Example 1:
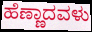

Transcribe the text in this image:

ಹೆಣ್ಣಾದವಳು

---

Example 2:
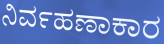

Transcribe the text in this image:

ನಿರ್ವಹಣಾಕಾರ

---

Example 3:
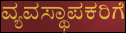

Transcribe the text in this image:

ವ್ಯವಸ್ಥಾಪಕರಿಗೆ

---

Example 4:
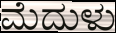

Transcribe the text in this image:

ಮೆದುಳು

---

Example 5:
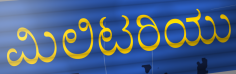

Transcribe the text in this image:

ಮಿಲಿಟರಿಯು